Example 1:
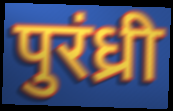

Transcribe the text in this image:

पुरंध्री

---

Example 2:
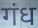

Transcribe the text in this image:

गंध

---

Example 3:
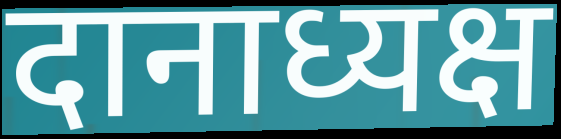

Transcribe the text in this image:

दानाध्यक्ष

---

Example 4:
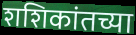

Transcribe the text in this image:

शशिकांतच्या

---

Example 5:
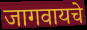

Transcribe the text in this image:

जागवायचे